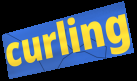
curling